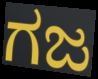
ಗಜ